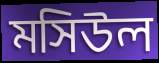
মসিউল